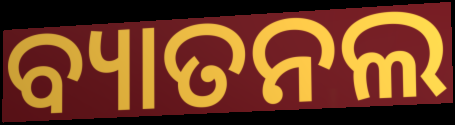
ବ୍ୟାତନଲ